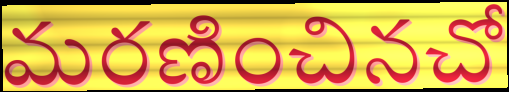
మరణించినచో